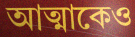
আত্মাকেও